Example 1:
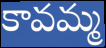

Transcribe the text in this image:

కావమ్మ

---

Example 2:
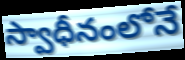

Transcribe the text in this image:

స్వాధీనంలోనే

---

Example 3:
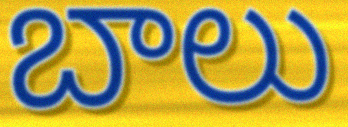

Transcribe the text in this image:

బాలు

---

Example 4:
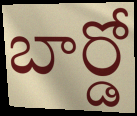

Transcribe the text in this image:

బార్డో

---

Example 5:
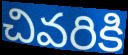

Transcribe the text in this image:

చివరికి